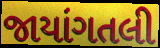
જાયાંગતલી